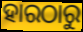
ହାରଠାରୁ